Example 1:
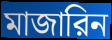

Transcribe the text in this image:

মাজারিন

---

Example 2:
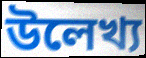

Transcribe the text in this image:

উলেখ্য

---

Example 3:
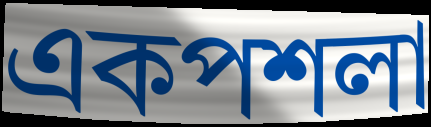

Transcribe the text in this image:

একপশলা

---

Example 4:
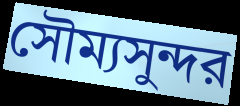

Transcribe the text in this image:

সৌম্যসুন্দর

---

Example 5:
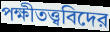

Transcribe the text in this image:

পক্ষীতত্ত্ববিদের